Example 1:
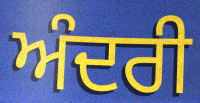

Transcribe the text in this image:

ਅੰਦਰੀ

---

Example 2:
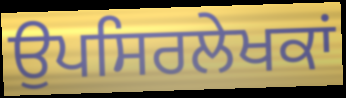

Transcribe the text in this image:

ਉਪਸਿਰਲੇਖਕਾਂ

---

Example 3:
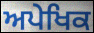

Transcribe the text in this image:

ਅਪੇਖਿਕ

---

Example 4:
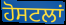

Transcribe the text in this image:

ਹੋਸਟਲਾਂ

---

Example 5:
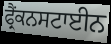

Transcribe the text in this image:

ਫ੍ਰੈਂਕਨਸਟਾਈਨ